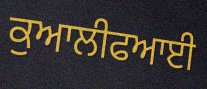
ਕੁਆਲੀਫਆਈ